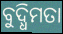
ବୁଦ୍ଧିମତା